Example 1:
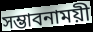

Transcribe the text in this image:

সম্ভাবনাময়ী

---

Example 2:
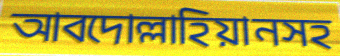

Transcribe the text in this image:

আবদোল্লাহিয়ানসহ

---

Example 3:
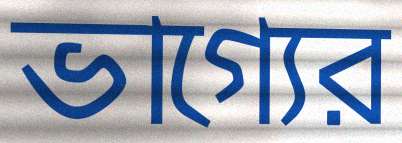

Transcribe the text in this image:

ভাগ্যের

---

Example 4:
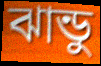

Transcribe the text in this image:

ঝান্ডু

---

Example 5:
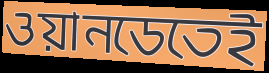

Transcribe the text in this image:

ওয়ানডেতেই